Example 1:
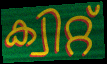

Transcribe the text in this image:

ക്വിറ്റ്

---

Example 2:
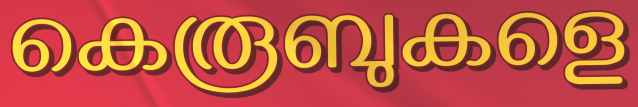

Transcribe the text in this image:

കെരൂബുകളെ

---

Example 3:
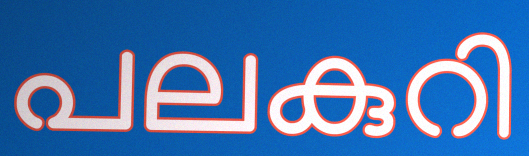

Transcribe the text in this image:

പലകുറി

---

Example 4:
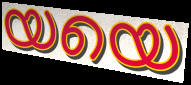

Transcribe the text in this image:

യയെ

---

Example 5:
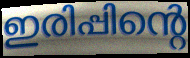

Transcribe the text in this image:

ഇരിപ്പിന്റെ